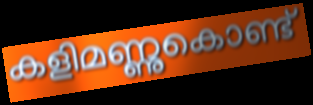
കളിമണ്ണുകൊണ്ട്